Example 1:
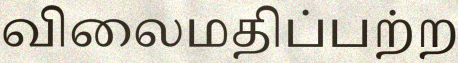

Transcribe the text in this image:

விலைமதிப்பற்ற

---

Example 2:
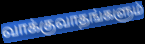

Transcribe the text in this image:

வாக்குவாதங்களும்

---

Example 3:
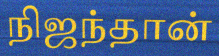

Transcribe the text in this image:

நிஜந்தான்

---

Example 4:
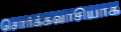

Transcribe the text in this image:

சொர்க்கவாசியாக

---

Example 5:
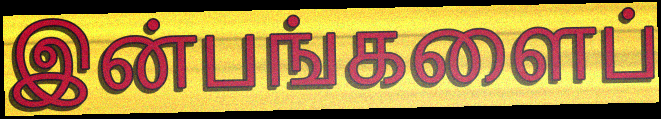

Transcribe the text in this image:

இன்பங்களைப்